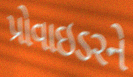
પ્રોવાઇડરને